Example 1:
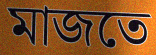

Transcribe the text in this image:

মাজতে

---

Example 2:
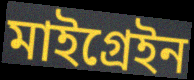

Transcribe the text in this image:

মাইগ্ৰেইন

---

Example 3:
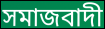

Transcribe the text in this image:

সমাজবাদী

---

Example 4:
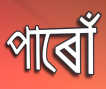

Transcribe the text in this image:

পাৰোঁ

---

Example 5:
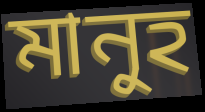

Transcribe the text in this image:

মানুহ